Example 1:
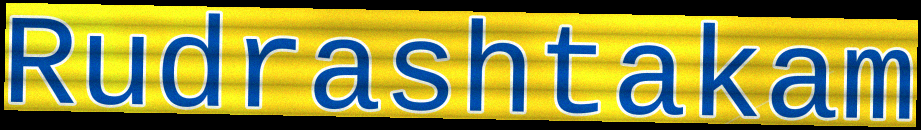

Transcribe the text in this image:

Rudrashtakam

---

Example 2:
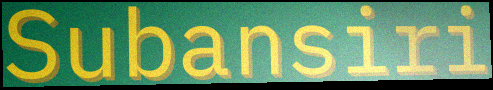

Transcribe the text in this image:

Subansiri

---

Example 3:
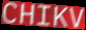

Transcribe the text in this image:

CHIKV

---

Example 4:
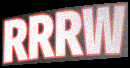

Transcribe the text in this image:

RRRW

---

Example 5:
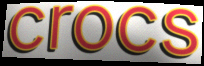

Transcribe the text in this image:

crocs